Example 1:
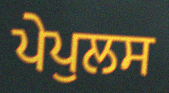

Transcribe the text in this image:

ਪੇਪੁਲਸ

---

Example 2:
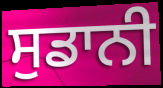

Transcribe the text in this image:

ਸੁਡਾਨੀ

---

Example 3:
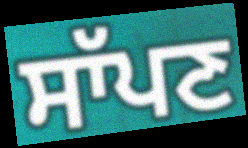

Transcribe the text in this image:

ਸਾੱਪਣ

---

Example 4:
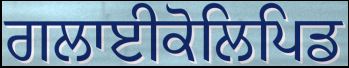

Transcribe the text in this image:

ਗਲਾਈਕੋਲਿਪਿਡ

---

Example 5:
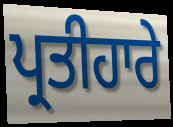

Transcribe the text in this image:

ਪ੍ਰਤੀਹਾਰੇ